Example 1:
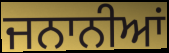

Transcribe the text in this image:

ਜਨਾਨੀਆਂ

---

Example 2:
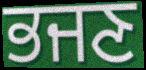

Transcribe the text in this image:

ਭਜਣ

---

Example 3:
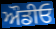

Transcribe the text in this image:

ਔਡੀਓ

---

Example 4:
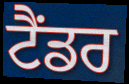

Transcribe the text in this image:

ਟੈਂਡਰ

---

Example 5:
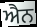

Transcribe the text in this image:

ਐਨ